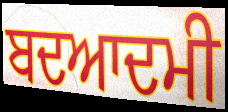
ਬਦਆਦਮੀ